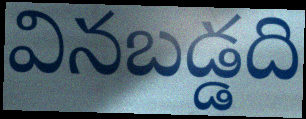
వినబడ్డది